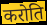
करोति